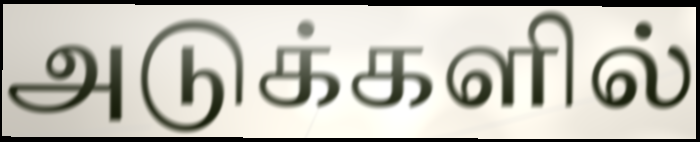
அடுக்களில்